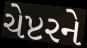
ચેપ્ટરને